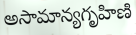
అసామాన్యగృహిణి